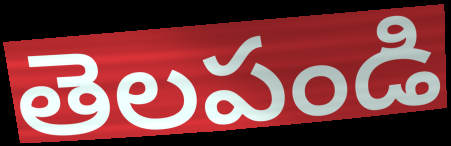
తెలపండి